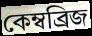
কেম্বব্ৰিজ